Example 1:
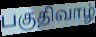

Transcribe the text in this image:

பகுதிவாழ்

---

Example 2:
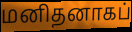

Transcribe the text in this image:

மனிதனாகப்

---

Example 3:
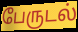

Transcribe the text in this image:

பேருடல்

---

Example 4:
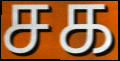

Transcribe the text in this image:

சக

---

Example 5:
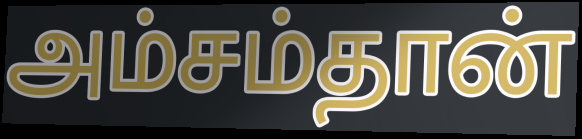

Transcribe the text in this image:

அம்சம்தான்